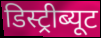
डिस्ट्रीब्यूट